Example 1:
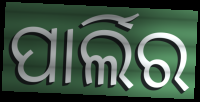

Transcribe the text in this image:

ପାର୍ଲିର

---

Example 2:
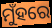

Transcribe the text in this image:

ମୁଁହରେ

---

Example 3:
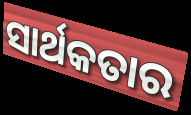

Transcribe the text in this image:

ସାର୍ଥକତାର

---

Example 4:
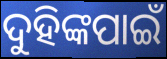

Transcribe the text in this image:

ଦୁହିଙ୍କପାଇଁ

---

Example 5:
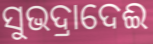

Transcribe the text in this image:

ସୁଭଦ୍ରାଦେଈ